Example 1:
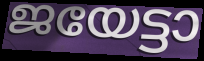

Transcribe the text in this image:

ജയേട്ടാ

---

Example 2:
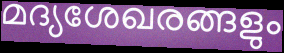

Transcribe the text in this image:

മദ്യശേഖരങ്ങളും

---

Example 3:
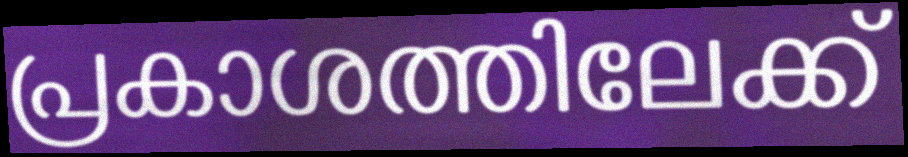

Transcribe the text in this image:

പ്രകാശത്തിലേക്ക്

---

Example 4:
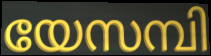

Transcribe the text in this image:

യേസമ്പി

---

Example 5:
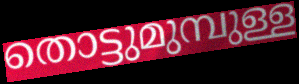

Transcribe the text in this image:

തൊട്ടുമുമ്പുള്ള